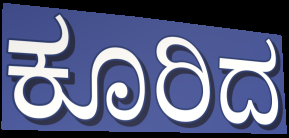
ಕೂರಿದ